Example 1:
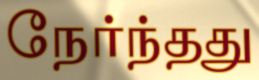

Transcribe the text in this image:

நேர்ந்தது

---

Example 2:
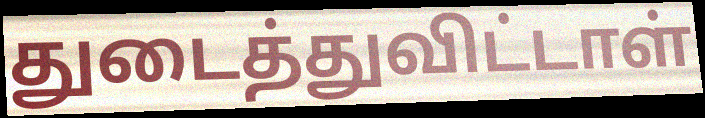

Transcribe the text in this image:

துடைத்துவிட்டாள்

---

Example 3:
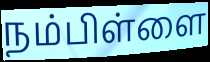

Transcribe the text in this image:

நம்பிள்ளை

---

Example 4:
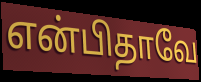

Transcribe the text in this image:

என்பிதாவே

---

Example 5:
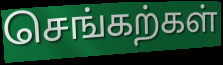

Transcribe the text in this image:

செங்கற்கள்